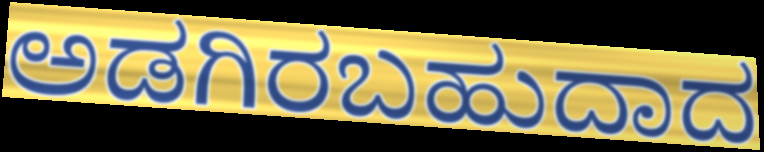
ಅಡಗಿರಬಹುದಾದ